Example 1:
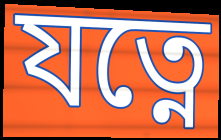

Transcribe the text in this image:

যত্নে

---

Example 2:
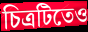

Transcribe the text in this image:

চিত্রটিতেও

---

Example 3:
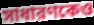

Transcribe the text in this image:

সাধারণকেও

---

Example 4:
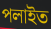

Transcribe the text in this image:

পলাইত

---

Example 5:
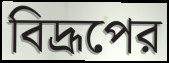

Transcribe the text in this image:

বিদ্রূপের